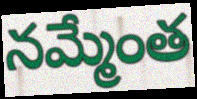
నమ్మేంత